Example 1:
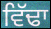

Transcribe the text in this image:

ਵਿੱਢਾ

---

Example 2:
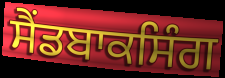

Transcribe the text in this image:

ਸੈਂਡਬਾਕਸਿੰਗ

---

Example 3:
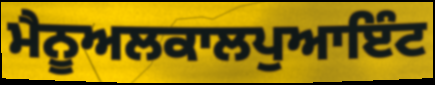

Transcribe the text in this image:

ਮੈਨੂਅਲਕਾਲਪੁਆਇੰਟ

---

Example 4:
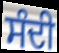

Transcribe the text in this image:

ਸੰਦੀ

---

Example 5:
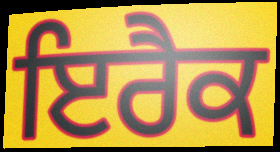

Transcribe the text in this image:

ਇਰੈਕ